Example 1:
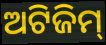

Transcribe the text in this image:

ଅଟିଜିମ୍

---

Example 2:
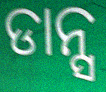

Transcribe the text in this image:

ଡାନ୍ସ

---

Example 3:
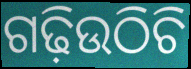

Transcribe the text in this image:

ଗଢ଼ିଉଠିଚି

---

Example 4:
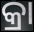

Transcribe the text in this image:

କ୍ରା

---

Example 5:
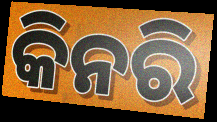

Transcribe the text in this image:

କିନରି